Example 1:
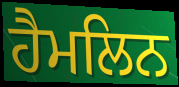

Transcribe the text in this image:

ਹੈਮਲਿਨ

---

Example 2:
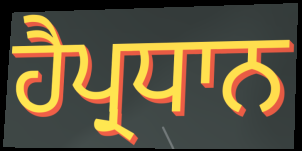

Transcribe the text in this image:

ਹੈਪ੍ਰਧਾਨ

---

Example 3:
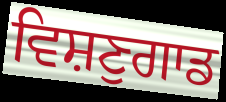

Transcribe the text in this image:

ਵਿਸ਼ਣੁਗਾਡ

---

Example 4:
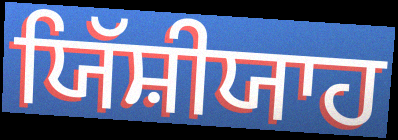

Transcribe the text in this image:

ਯਿੱਸ਼ੀਯਾਹ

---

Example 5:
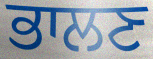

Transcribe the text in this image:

ਭਾਲਣ